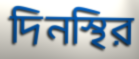
দিনস্থির